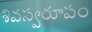
శివస్వరూపం